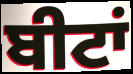
ਬੀਟਾਂ